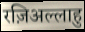
रज़िअल्लाहु